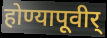
होण्यापूवीर्